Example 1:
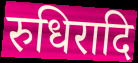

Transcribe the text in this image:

रुधिरादि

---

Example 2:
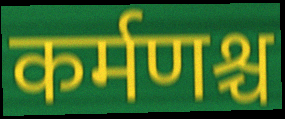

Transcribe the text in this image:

कर्मणश्च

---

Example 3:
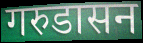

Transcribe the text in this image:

गरुडासन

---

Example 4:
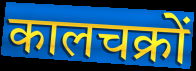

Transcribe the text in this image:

कालचक्रों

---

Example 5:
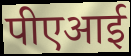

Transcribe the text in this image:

पीएआई